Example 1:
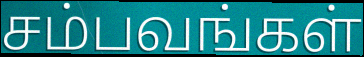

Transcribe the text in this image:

சம்பவங்கள்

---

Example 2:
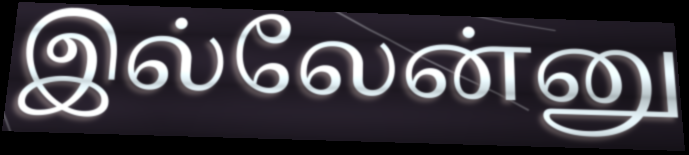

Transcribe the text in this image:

இல்லேன்னு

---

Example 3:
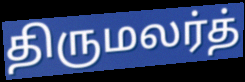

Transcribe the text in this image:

திருமலர்த்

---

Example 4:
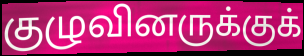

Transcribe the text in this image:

குழுவினருக்குக்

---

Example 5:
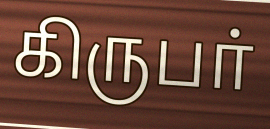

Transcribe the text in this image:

கிருபர்